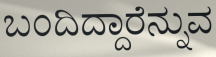
ಬಂದಿದ್ದಾರೆನ್ನುವ